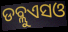
ଡବ୍ଲୁଏସଓ